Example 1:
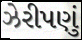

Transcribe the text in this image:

ઝેરીપણું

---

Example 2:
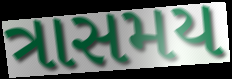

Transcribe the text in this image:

ત્રાસમય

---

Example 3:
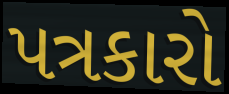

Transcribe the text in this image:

પત્રકારો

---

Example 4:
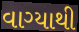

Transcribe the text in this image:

વાગ્યાથી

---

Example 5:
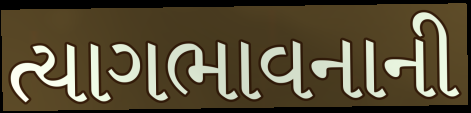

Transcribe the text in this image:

ત્યાગભાવનાની